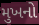
મુખનો